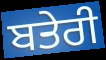
ਬਤੇਰੀ